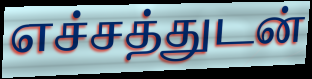
எச்சத்துடன்